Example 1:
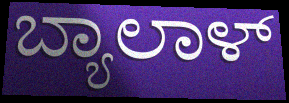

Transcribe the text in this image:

ಬ್ಯಾಲಾಳ್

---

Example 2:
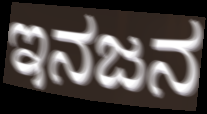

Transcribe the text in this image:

ಇನಜನ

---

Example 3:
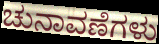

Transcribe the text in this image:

ಚುನಾವಣೆಗಳು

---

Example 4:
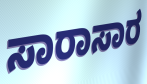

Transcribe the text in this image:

ಸಾರಾಸಾರ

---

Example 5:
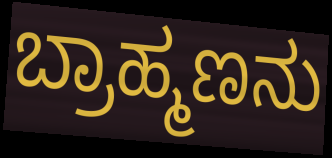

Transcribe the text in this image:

ಬ್ರಾಹ್ಮಣನು